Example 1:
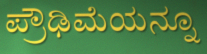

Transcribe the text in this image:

ಪ್ರೌಢಿಮೆಯನ್ನೂ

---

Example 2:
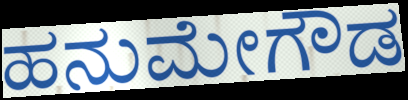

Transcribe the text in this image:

ಹನುಮೇಗೌಡ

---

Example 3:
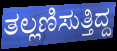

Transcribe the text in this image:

ತಲ್ಲಣಿಸುತ್ತಿದ್ದ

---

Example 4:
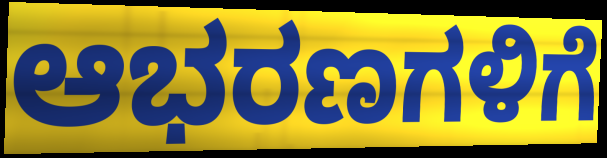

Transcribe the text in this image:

ಆಭರಣಗಳಿಗೆ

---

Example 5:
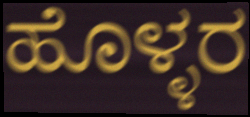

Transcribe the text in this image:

ಹೊಳ್ಳರ